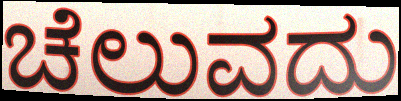
ಚೆಲುವದು